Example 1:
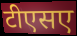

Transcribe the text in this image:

टीएसए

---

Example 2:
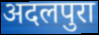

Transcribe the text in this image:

अदलपुरा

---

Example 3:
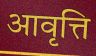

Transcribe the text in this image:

आवृत्ति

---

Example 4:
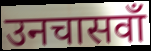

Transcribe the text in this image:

उनचासवाँ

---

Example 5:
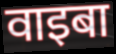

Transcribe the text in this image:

वाइबा